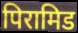
पिरामिड